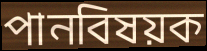
পানবিষয়ক